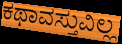
ಕಥಾವಸ್ತುವಿಲ್ಲ